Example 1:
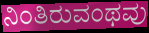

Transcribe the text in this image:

ನಿಂತಿರುವಂಥವು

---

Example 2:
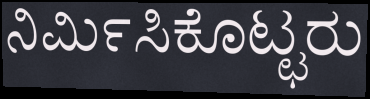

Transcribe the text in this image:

ನಿರ್ಮಿಸಿಕೊಟ್ಟರು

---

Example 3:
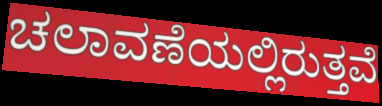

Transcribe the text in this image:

ಚಲಾವಣೆಯಲ್ಲಿರುತ್ತವೆ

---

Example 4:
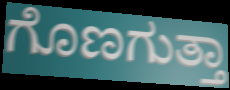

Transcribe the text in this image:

ಗೊಣಗುತ್ತಾ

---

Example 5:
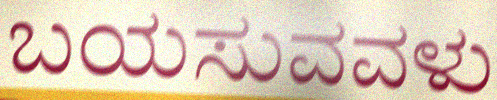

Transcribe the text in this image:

ಬಯಸುವವಳು